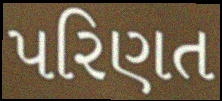
પરિણત